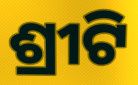
ଶ୍ରୀଟି